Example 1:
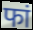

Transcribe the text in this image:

फां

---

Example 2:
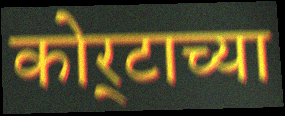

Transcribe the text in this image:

कोर्टाच्या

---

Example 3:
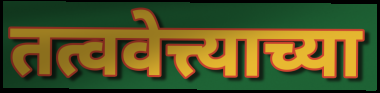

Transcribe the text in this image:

तत्ववेत्त्याच्या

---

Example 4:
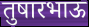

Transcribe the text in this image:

तुषारभाऊ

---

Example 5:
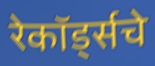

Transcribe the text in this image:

रेकॉर्ड्सचे